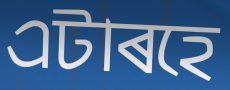
এটাৰহে